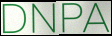
DNPA